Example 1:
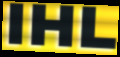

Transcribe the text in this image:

IHL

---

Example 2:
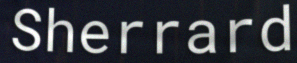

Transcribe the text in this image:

Sherrard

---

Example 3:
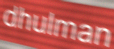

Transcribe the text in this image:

dhulman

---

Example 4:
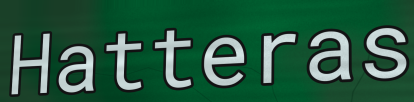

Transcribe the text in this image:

Hatteras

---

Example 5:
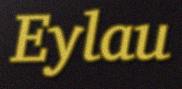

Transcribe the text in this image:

Eylau